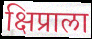
क्षिप्राला